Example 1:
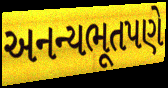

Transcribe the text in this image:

અનન્યભૂતપણે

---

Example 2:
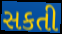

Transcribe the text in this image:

સકતી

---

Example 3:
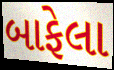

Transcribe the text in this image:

બાફેલા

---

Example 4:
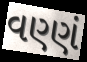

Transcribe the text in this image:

વણ્ણં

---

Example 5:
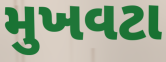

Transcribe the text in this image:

મુખવટા